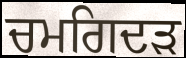
ਚਮਗਿਦੜ